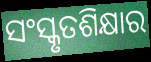
ସଂସ୍କୃତଶିକ୍ଷାର